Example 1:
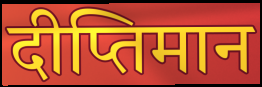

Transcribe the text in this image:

दीप्तिमान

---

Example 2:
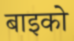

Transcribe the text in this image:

बाइको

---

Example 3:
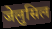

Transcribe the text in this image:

जेलुसिल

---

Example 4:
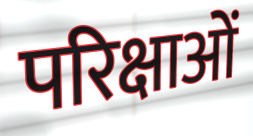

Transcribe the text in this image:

परिक्षाओं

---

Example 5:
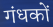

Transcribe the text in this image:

गंधकों